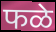
फळे